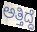
ಅತ್ತಿದ್ದೆ